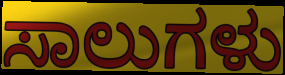
ಸಾಲುಗಳು